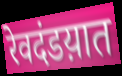
रेवदंडय़ात